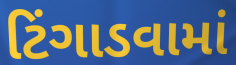
ટિંગાડવામાં